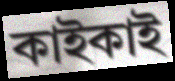
কাইকাই